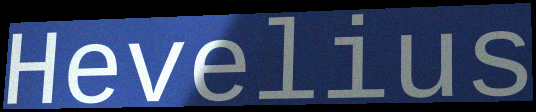
Hevelius